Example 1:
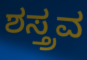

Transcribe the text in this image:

ಶಸ್ತ್ರವ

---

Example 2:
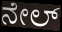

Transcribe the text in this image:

ನೇಲ್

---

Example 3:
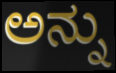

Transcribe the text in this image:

ಅನ್ನು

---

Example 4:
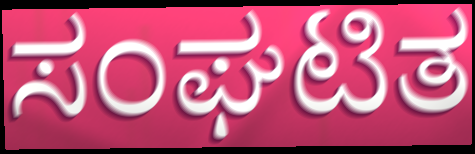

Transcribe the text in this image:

ಸಂಘಟಿತ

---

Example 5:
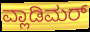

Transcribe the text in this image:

ವ್ಲಾಡಿಮರ್